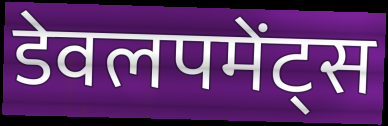
डेवलपमेंट्स